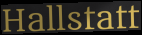
Hallstatt